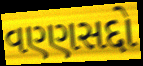
વણ્ણસદ્દો